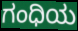
ಗಂಧಿಯ